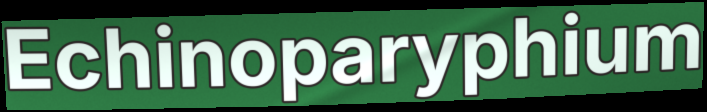
Echinoparyphium